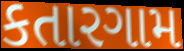
કતારગામ